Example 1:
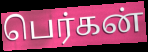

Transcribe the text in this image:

பெர்கன்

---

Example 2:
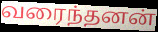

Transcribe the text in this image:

வரைந்தனன்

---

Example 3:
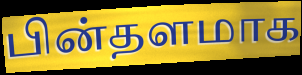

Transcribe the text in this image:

பின்தளமாக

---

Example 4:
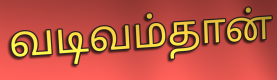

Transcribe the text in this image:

வடிவம்தான்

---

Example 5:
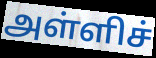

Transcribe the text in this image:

அள்ளிச்